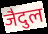
जैदुल